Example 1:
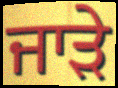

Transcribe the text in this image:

ਜਾੜੇ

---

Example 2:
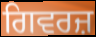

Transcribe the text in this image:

ਗਿਵਰਜ਼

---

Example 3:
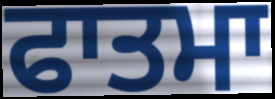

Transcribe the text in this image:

ਫਾਤਮਾ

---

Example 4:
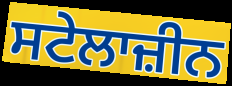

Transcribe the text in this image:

ਸਟੇਲਾਜ਼ੀਨ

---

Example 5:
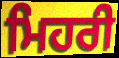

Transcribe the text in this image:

ਮਿਹਰੀ